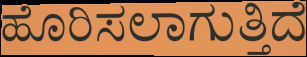
ಹೊರಿಸಲಾಗುತ್ತಿದೆ